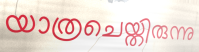
യാത്രചെയ്തിരുന്നു